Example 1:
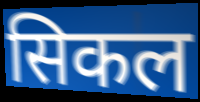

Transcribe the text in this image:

सिकल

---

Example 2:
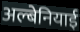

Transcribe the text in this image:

अल्बेनियाई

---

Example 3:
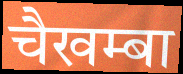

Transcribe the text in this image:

चैखम्बा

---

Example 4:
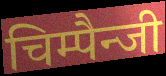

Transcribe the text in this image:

चिम्पैन्जी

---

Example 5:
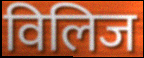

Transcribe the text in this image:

विलिज